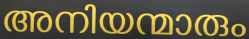
അനിയന്മാരും